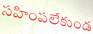
సహింపలేకుండ